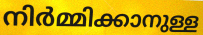
നിർമ്മിക്കാനുള്ള